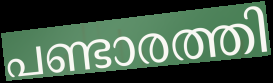
പണ്ടാരത്തി